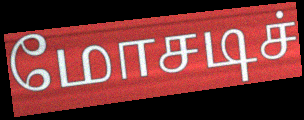
மோசடிச்